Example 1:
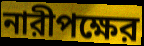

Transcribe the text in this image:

নারীপক্ষের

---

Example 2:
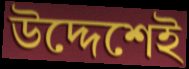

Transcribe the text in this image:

উদ্দেশেই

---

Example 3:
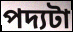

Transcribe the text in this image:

পদ্যটা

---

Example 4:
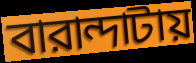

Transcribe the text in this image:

বারান্দাটায়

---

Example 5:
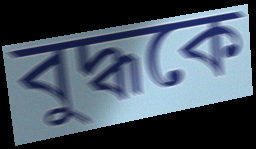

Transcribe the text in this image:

বুদ্ধকে